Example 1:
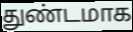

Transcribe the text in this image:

துண்டமாக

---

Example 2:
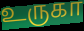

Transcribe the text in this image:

உருகா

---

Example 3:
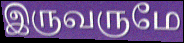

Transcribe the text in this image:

இருவருமே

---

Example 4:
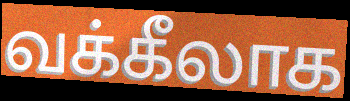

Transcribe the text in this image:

வக்கீலாக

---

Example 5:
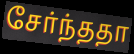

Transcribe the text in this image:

சேர்ந்ததா